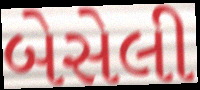
બેસેલી